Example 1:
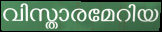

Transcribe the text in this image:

വിസ്താരമേറിയ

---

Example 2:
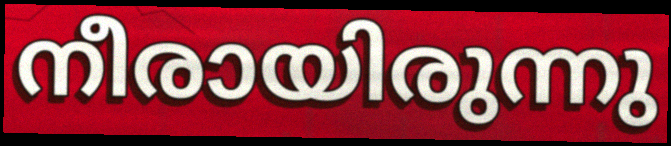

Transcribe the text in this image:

നീരായിരുന്നു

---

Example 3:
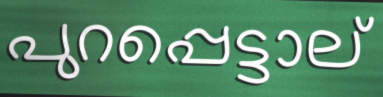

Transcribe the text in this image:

പുറപ്പെട്ടാല്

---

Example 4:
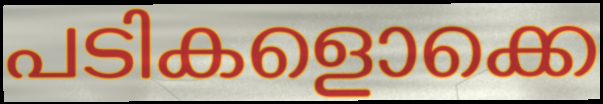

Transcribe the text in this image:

പടികളൊക്കെ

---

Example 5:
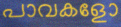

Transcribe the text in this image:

പാവകളോ